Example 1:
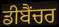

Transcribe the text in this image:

ਡੀਬੈਂਚਰ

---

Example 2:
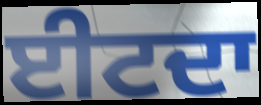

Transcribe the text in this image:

ਈਟਦਾ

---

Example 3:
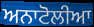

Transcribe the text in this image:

ਅਨਾਟੋਲੀਆ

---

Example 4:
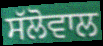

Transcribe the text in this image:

ਸੱਲੋਵਾਲ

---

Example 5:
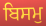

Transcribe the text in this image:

ਬਿਸਮੁ